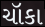
ચૉકા